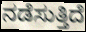
ನಡೆಸುತ್ತಿದೆ